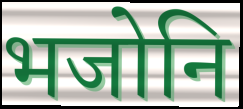
भजोनि